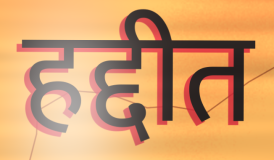
हद्दीत